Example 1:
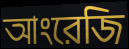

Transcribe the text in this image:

আংরেজি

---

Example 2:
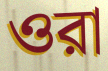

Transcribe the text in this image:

ওরা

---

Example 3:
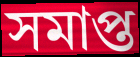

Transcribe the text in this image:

সমাপ্ত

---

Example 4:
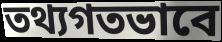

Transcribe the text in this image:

তথ্যগতভাবে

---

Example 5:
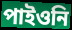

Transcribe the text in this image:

পাইওনি